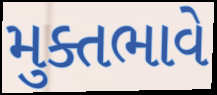
મુક્તભાવે